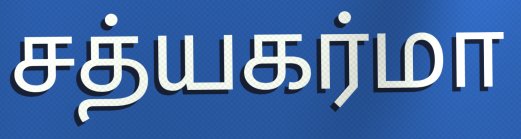
சத்யகர்மா